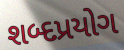
શબ્દપ્રયોગ